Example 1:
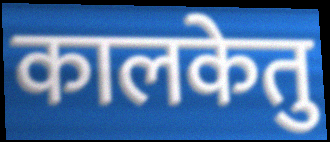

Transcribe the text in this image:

कालकेतु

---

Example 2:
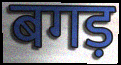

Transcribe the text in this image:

बगड़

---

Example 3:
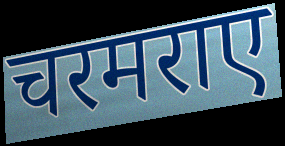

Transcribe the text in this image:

चरमराए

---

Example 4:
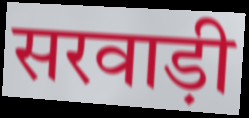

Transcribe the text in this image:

सरवाड़ी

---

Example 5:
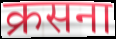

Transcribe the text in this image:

क्रसना